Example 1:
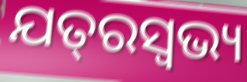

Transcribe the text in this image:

ଯତ୍‌ରସ୍ଵଭ୍ୟ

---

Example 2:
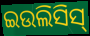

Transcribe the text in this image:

ଇଉଲିସିସ୍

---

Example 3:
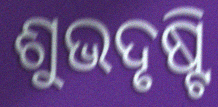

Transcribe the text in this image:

ଶୁଭଦୃଷ୍ଟି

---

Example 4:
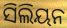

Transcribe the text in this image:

ସିଲିୟନ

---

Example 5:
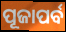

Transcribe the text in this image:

ପୂଜାପର୍ବ